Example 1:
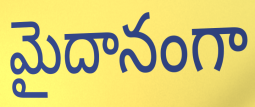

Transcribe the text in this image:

మైదానంగా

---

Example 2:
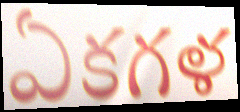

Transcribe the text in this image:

ఏకగళ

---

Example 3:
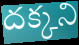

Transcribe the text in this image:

దక్కని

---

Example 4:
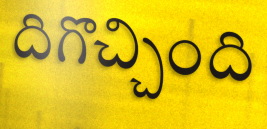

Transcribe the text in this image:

దిగొచ్చింది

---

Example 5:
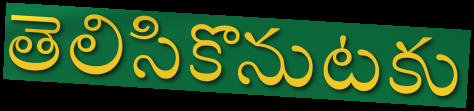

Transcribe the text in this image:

తెలిసికొనుటకు